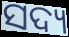
ସଦ୍ଯ